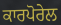
ਕਾਰਪੋਰੇਲ